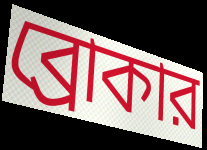
ব্রোকার